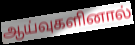
ஆய்வுகளினால்